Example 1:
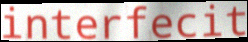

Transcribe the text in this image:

interfecit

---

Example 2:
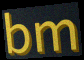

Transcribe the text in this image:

bm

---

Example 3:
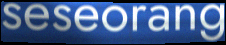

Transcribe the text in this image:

seseorang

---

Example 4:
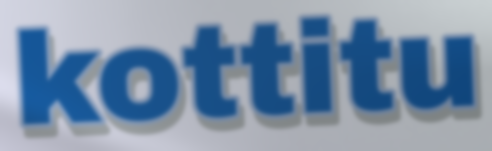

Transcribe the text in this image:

kottitu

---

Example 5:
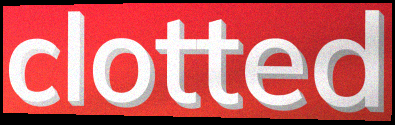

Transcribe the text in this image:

clotted